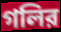
গলির